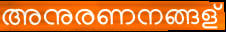
അനുരണനങ്ങള്